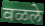
वळले